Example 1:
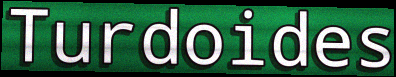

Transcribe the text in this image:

Turdoides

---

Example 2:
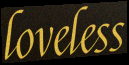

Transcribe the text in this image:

loveless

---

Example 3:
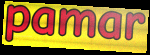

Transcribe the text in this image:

pamar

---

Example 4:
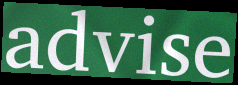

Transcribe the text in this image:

advise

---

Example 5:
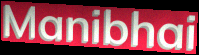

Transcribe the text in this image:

Manibhai